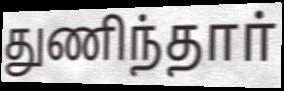
துணிந்தார்